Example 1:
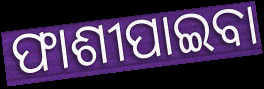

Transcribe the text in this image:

ଫାଶୀପାଇବା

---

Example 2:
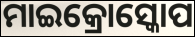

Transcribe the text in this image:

ମାଇକ୍ରୋସ୍କୋପ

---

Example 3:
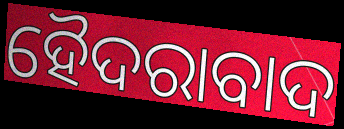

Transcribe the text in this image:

ହୈଦରାବାଦ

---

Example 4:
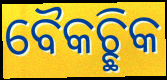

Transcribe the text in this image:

ବୈକଚ୍ଛିକ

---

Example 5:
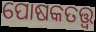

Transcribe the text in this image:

ପୋଷକତତ୍ତ୍ବ